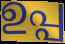
ഉപ്പ